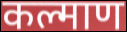
कल्माण